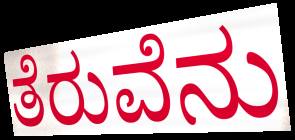
ತೆರುವೆನು